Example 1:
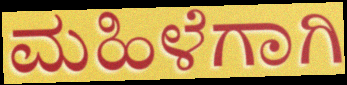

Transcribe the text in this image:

ಮಹಿಳೆಗಾಗಿ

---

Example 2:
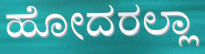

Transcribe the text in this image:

ಹೋದರಲ್ಲಾ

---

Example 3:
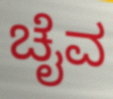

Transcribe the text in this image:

ಚೈವ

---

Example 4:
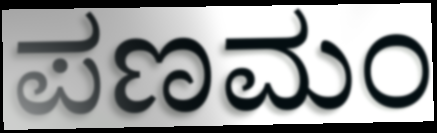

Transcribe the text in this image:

ಪಣಮಂ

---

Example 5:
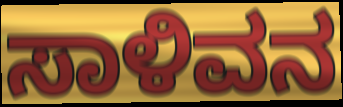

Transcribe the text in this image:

ಸಾಳಿವನ